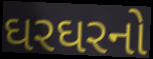
ઘરઘરનો